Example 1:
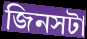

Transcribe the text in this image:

জিনসটা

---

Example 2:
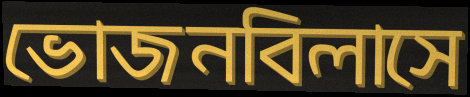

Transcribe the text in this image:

ভোজনবিলাসে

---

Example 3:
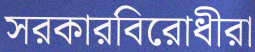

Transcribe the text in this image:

সরকারবিরোধীরা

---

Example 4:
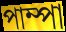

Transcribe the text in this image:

পাম্পা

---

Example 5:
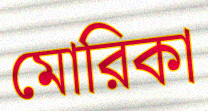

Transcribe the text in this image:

মোরিকা